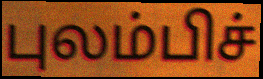
புலம்பிச்